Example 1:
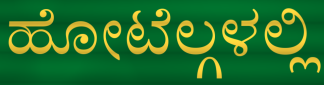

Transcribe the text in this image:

ಹೋಟೆಲ್ಗಳಲ್ಲಿ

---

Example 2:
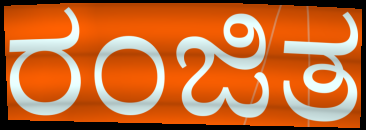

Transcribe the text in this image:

ರಂಜಿತ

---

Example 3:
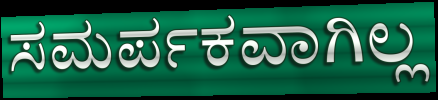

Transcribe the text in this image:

ಸಮರ್ಪಕವಾಗಿಲ್ಲ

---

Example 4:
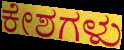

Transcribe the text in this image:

ಕೇಶಗಳು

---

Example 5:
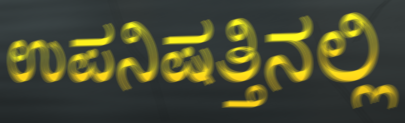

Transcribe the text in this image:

ಉಪನಿಷತ್ತಿನಲ್ಲಿ